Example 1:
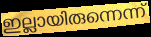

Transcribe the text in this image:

ഇല്ലായിരുന്നെന്ന്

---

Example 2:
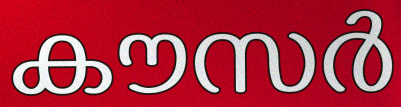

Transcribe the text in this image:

കൗസർ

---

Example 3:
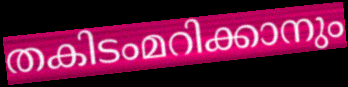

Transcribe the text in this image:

തകിടംമറിക്കാനും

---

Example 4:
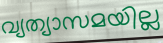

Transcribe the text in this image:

വ്യത്യാസമയില്ല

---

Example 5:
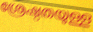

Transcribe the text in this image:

ശ്രേഷ്ഠതയുള്ള